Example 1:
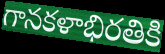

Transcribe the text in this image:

గానకళాభిరతికి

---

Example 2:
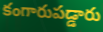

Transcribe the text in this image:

కంగారుపడ్డారు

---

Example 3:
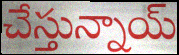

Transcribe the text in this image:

చేస్తున్నాయ్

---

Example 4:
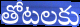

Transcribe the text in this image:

తోటలకు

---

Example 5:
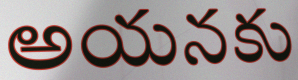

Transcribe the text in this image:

అయనకు